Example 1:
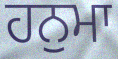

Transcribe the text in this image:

ਹਨੁਮਾ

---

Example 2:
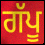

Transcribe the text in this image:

ਗੱਪੂ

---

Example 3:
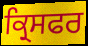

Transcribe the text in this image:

ਕ੍ਰਿਸਫਰ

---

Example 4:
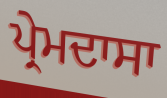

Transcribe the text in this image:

ਪ੍ਰੇਮਦਾਸਾ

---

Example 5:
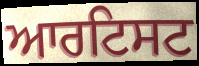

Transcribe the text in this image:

ਆਰਟਿਸਟ